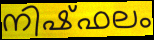
നിഷ്ഫലം